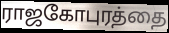
ராஜகோபுரத்தை